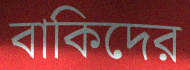
বাকিদের